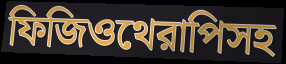
ফিজিওথেরাপিসহ